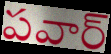
పవార్